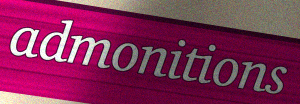
admonitions